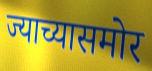
ज्याच्यासमोर